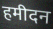
हमीदन